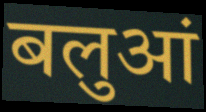
बलुआं